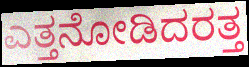
ಎತ್ತನೋಡಿದರತ್ತ